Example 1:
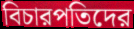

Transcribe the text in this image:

বিচারপতিদের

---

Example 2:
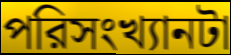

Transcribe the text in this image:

পরিসংখ্যানটা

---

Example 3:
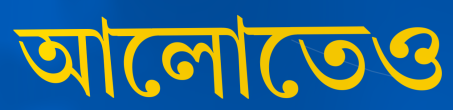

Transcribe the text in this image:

আলোতেও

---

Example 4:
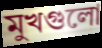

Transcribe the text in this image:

মুখগুলো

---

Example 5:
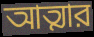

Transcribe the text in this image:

আত্মার